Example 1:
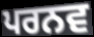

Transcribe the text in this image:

ਪਰਨਵ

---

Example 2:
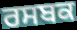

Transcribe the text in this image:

ਰਸਬਕ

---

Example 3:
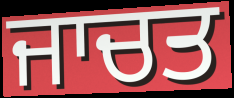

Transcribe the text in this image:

ਜਾਚਤ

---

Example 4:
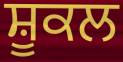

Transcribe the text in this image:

ਸ਼ੂਕਲ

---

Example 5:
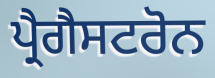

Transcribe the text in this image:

ਪ੍ਰੈਗੈਸਟਰੋਨ